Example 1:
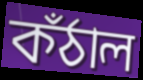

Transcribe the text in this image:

কঁঠাল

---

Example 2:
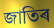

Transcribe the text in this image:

জাতিৰ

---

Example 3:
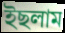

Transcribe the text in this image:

ইছলাম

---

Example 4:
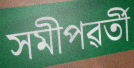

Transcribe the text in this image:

সমীপৱৰ্তী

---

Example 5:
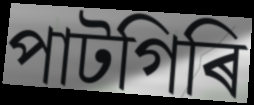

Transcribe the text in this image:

পাটগিৰি